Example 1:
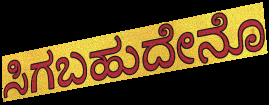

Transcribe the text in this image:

ಸಿಗಬಹುದೇನೊ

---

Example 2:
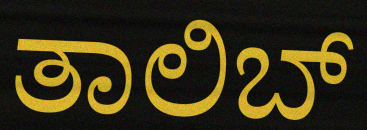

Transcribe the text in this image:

ತಾಲಿಬ್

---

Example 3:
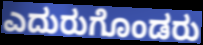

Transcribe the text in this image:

ಎದುರುಗೊಂಡರು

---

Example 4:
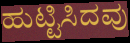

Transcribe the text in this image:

ಹುಟ್ಟಿಸಿದವು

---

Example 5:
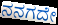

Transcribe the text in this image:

ನನಗದೇ